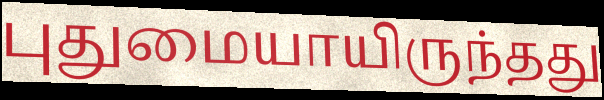
புதுமையாயிருந்தது